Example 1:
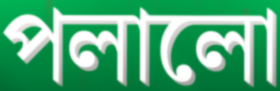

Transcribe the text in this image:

পলালো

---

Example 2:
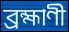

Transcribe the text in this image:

ব্রহ্মাণী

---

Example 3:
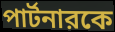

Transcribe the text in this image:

পার্টনারকে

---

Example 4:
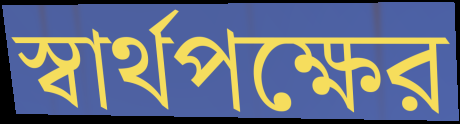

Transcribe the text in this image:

স্বার্থপক্ষের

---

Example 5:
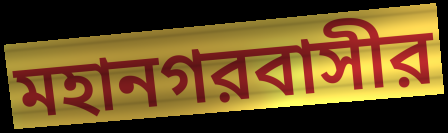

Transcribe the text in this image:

মহানগরবাসীর